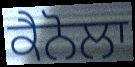
ਕੈਨੋਲਾ